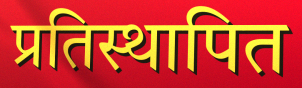
प्रतिस्थापित